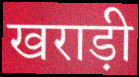
खराड़ी